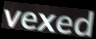
vexed